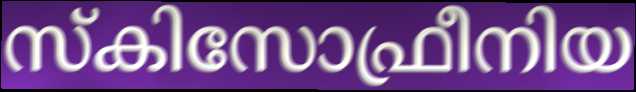
സ്കിസോഫ്രീനിയ